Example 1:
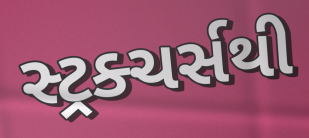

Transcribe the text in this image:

સ્ટ્રક્ચર્સથી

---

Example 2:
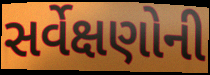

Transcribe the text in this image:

સર્વેક્ષણોની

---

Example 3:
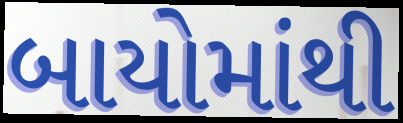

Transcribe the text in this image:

બાયોમાંથી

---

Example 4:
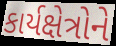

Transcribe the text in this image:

કાર્યક્ષેત્રોને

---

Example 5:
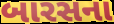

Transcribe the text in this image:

બારસના